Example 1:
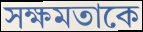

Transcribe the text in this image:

সক্ষমতাকে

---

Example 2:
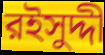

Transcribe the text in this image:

রইসুদ্দী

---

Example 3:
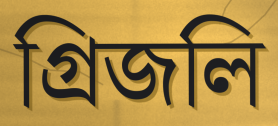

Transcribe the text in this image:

গ্রিজলি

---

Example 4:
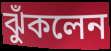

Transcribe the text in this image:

ঝুঁকলেন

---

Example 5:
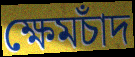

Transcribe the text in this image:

ক্ষেমচাঁদ